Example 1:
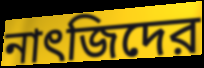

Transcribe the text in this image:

নাৎজিদের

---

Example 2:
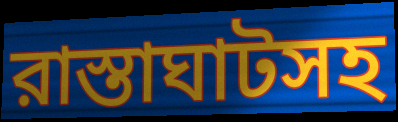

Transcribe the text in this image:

রাস্তাঘাটসহ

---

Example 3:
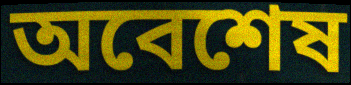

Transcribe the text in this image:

অবেশেষ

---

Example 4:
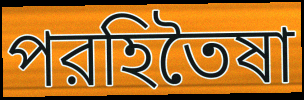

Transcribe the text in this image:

পরহিতৈষা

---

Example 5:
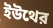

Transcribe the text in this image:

ইউথের